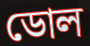
ডোল